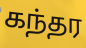
கந்தர